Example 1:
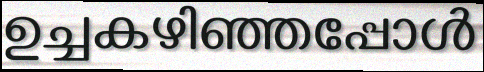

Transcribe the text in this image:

ഉച്ചകഴിഞ്ഞപ്പോൾ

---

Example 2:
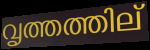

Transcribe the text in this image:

വൃത്തത്തില്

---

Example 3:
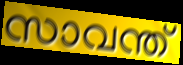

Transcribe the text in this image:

സാവന്ത്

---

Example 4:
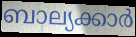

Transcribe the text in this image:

ബാല്യക്കാർ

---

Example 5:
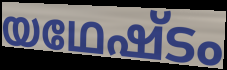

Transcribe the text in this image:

യഥേഷ്ടം